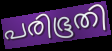
പരിഭൂതി